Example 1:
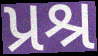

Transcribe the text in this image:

પ્રશ્ર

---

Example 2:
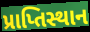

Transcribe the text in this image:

પ્રાપ્તિસ્થાન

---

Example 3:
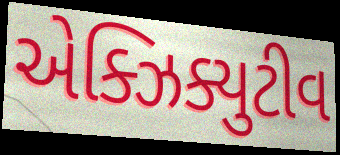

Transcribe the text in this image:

એક્ઝિક્યુટીવ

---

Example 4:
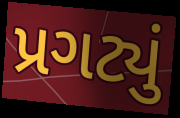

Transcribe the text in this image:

પ્રગટ્યું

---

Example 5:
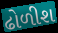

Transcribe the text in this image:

ઢોળીશ